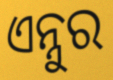
ଏନ୍ନୁର